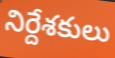
నిర్దేశకులు